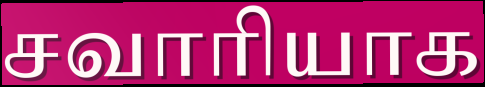
சவாரியாக